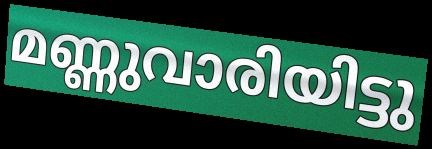
മണ്ണുവാരിയിട്ടു